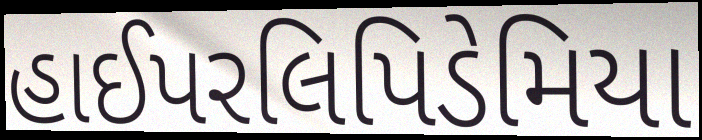
હાઈપરલિપિડેમિયા